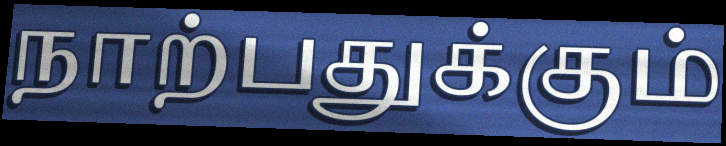
நாற்பதுக்கும்